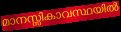
മാനസ്സികാവസ്ഥയിൽ